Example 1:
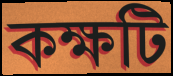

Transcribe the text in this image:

কক্ষটি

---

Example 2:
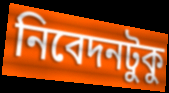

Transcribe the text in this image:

নিবেদনটুকু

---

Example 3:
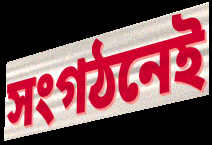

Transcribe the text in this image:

সংগঠনেই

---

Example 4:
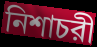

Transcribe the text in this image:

নিশাচরী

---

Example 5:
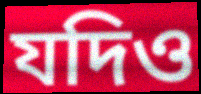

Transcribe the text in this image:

যদিও